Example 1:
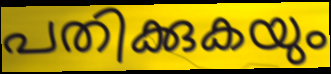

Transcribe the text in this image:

പതിക്കുകയും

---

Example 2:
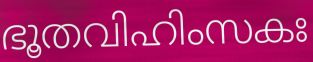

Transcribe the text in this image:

ഭൂതവിഹിംസകഃ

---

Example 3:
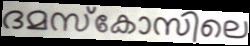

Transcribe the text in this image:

ദമസ്കോസിലെ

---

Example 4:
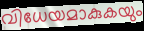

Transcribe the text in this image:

വിധേയമാകുകയും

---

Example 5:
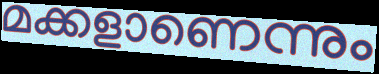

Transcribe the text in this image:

മക്കളാണെന്നും